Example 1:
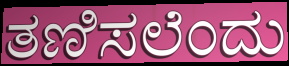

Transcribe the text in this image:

ತಣಿಸಲೆಂದು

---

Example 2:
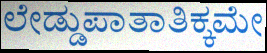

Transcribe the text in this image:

ಲೇಡ್ಡುಪಾತಾತಿಕ್ಕಮೇ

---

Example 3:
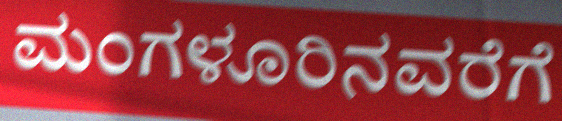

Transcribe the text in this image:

ಮಂಗಳೂರಿನವರೆಗೆ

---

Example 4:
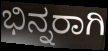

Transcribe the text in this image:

ಭಿನ್ನರಾಗಿ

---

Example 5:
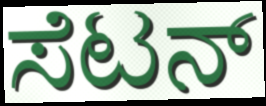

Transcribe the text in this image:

ಸೆಟನ್